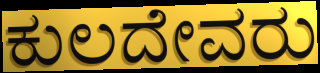
ಕುಲದೇವರು